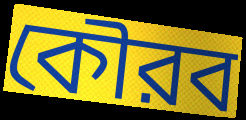
কৌরব